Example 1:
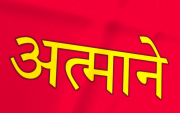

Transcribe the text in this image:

अत्माने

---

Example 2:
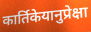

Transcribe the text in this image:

कार्तिकेयानुप्रेक्षा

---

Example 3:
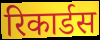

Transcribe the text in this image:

रिकार्डस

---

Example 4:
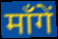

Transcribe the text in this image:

माँगें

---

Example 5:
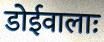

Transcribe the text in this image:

डोईवालाः